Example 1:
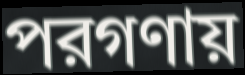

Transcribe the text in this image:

পরগণায়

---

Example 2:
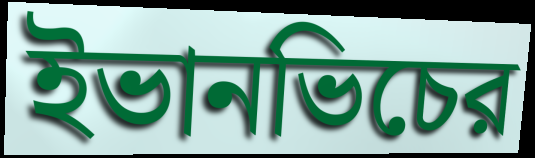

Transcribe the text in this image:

ইভানভিচের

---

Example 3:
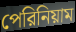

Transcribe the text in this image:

পেরিনিয়াম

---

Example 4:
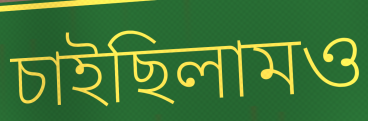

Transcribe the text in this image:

চাইছিলামও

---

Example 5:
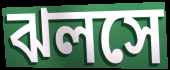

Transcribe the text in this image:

ঝলসে